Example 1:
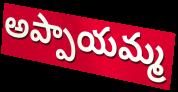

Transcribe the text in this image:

అప్పాయమ్మ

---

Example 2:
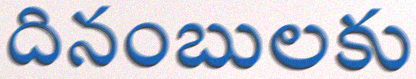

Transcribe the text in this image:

దినంబులకు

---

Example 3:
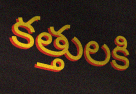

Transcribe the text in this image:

కత్తులకి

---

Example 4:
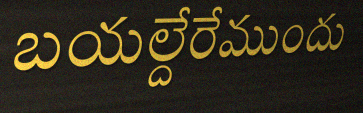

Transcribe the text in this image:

బయల్దేరేముందు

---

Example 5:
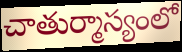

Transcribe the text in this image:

చాతుర్మాస్యంలో